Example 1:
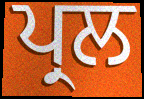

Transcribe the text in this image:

ਪ੍ਰਲ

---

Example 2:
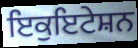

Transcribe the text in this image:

ਇਕੁਇਟੇਸ਼ਨ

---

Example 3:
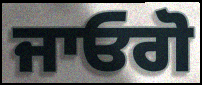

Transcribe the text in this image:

ਜਾਓਗੋ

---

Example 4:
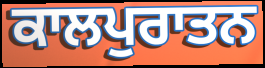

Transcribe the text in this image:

ਕਾਲਪੁਰਾਤਨ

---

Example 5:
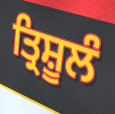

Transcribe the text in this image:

ਤ੍ਰਿਸ਼ੂਲੰ